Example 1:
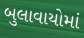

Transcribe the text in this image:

બુલાવાયોમાં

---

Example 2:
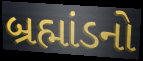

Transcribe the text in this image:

બ્રહ્માંડનો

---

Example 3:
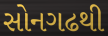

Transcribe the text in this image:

સોનગઢથી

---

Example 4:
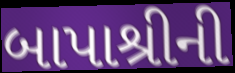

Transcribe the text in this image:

બાપાશ્રીની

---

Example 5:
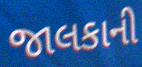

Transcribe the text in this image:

જાલકાની